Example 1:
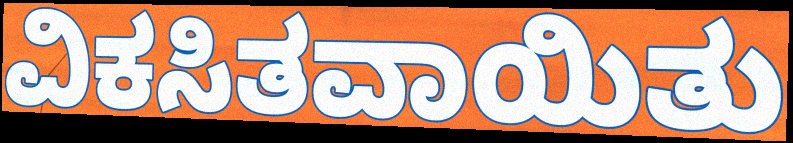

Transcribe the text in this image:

ವಿಕಸಿತವಾಯಿತು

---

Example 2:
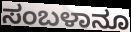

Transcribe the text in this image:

ಸಂಬಳಾನೂ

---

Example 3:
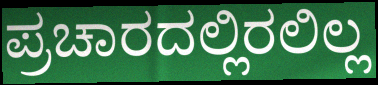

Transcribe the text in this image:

ಪ್ರಚಾರದಲ್ಲಿರಲಿಲ್ಲ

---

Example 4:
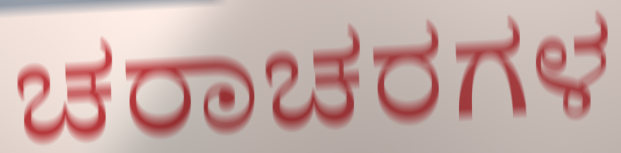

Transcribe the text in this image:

ಚರಾಚರಗಳ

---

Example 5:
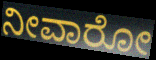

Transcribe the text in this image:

ನೀವಾರೋ